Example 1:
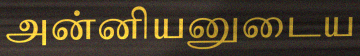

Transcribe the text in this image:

அன்னியனுடைய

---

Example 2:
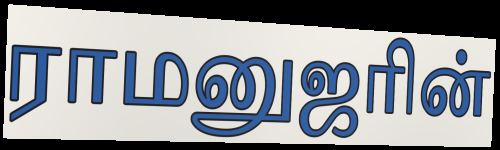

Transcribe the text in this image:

ராமனுஜரின்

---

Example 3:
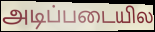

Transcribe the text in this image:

அடிப்படையில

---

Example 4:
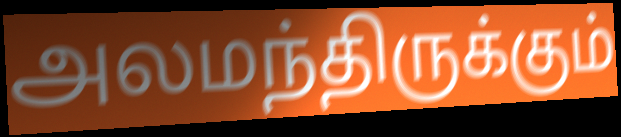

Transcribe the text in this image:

அலமந்திருக்கும்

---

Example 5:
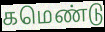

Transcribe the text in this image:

கமெண்டு